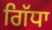
ਗਿੱਧਾ